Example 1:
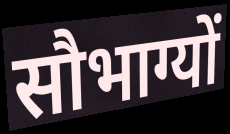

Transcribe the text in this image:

सौभाग्यों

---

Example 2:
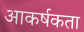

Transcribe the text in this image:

आकर्षकता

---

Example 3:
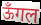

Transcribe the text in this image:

ऊँगल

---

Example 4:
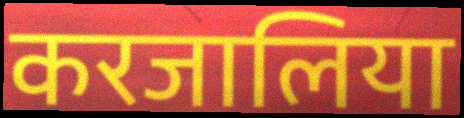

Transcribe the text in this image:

करजालिया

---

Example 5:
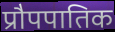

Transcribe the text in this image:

प्रौपपातिक